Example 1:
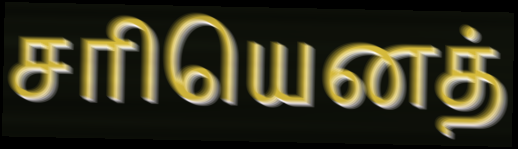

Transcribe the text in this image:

சரியெனத்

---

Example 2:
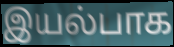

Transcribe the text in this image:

இயல்பாக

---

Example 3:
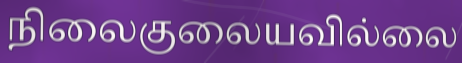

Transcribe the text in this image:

நிலைகுலையவில்லை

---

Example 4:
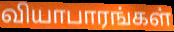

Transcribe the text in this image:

வியாபாரங்கள்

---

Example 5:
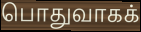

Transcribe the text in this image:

பொதுவாகக்